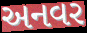
અનવર